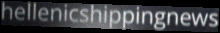
hellenicshippingnews